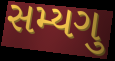
સમ્યગુ